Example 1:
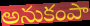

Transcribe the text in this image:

అనుకంపా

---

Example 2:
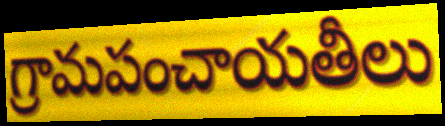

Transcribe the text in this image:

గ్రామపంచాయతీలు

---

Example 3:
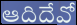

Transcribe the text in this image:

ఆదిదేవో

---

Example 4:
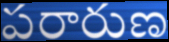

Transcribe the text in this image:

పరారుణ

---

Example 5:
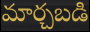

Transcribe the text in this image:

మార్చబడి